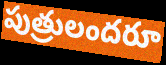
పుత్రులందరూ